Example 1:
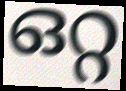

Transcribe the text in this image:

ഒറ്റ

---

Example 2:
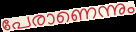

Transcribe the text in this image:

പേരാണെന്നും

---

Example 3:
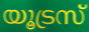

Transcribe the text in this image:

യൂട്രസ്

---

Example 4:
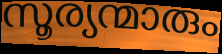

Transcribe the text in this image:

സൂര്യന്മാരും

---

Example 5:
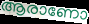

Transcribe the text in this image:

ആരാണോ